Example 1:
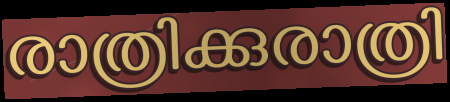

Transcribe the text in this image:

രാത്രിക്കുരാത്രി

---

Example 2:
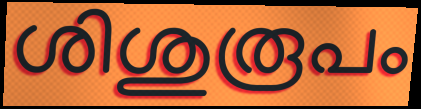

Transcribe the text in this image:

ശിശുരൂപം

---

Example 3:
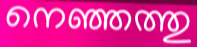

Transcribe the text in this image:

നെഞ്ഞത്തു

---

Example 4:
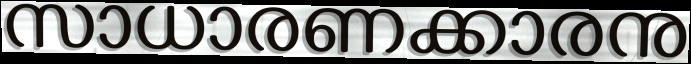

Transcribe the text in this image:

സാധാരണക്കാരനു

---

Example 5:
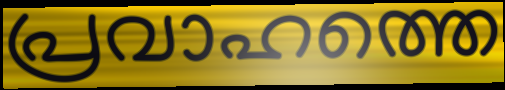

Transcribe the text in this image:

പ്രവാഹത്തെ